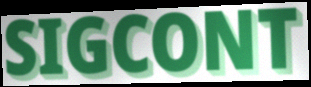
SIGCONT